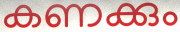
കണക്കും